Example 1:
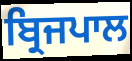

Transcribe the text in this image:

ਬ੍ਰਿਜਪਾਲ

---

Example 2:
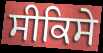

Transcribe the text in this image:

ਸੀਕਿਸੇ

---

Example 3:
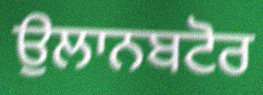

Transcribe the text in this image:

ਉਲਾਨਬਟੋਰ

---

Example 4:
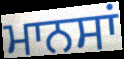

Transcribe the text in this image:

ਮਾਨਸਾਂ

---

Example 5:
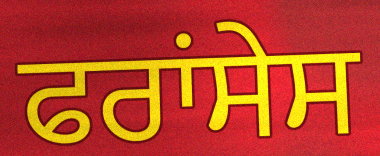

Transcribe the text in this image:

ਫਰਾਂਸੇਸ